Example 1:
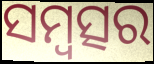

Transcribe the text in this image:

ସମ୍ବତ୍ସର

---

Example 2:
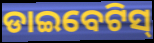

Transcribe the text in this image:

ଡାଇବେଟିସ୍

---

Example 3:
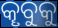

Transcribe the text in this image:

କୄବୁକୁ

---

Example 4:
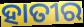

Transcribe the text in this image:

ହାତୀର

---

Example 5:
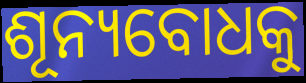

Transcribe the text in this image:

ଶୂନ୍ୟବୋଧକୁ